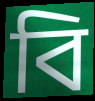
বি